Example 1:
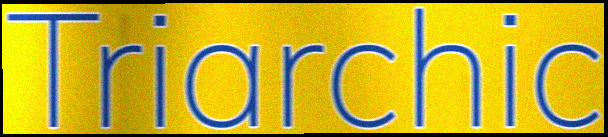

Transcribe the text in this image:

Triarchic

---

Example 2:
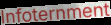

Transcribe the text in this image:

Infoternment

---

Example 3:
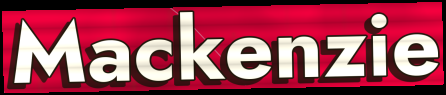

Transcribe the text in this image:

Mackenzie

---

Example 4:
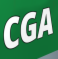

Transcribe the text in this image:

CGA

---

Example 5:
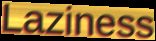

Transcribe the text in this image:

Laziness